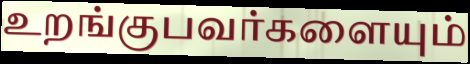
உறங்குபவர்களையும்